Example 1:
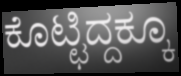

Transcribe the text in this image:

ಕೊಟ್ಟಿದ್ದಕ್ಕೂ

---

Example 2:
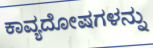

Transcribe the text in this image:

ಕಾವ್ಯದೋಷಗಳನ್ನು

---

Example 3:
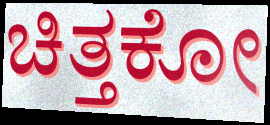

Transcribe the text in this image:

ಚಿತ್ತಕೋ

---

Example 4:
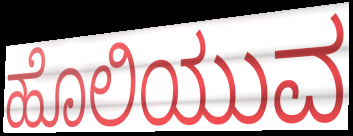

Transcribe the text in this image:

ಹೊಲಿಯುವ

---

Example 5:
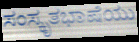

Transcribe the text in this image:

ಸಂಸ್ಕೃತಭಾಷೆಯು